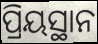
ପ୍ରିୟସ୍ଥାନ